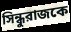
সিন্ধুরাজকে